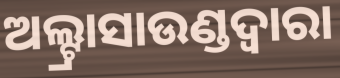
ଅଲ୍ଟ୍ରାସାଉଣ୍ଡଦ୍ୱାରା